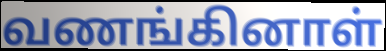
வணங்கினாள்